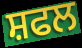
ਸ਼ਫਲ